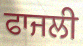
ਫਾਜਲੀ